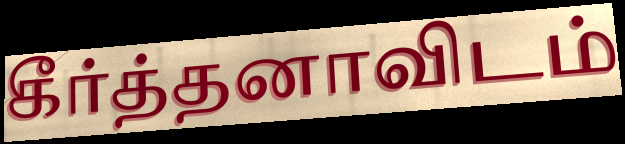
கீர்த்தனாவிடம்